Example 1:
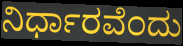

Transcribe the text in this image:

ನಿರ್ಧಾರವೆಂದು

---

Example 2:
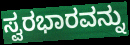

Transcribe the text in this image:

ಸ್ವರಭಾರವನ್ನು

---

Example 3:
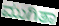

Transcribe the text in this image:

ಮುಗಿತಾ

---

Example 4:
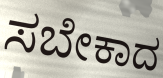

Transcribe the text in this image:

ಸಬೇಕಾದ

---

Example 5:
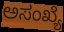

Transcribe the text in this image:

ಅಸಂಖ್ಯೆ